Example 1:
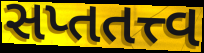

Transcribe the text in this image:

સપ્તતત્ત્વ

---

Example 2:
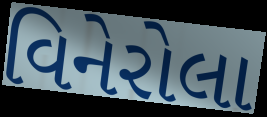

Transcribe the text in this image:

વિનેરોલા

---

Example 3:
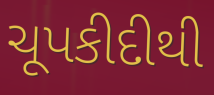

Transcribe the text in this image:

ચૂપકીદીથી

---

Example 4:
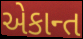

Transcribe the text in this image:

એકાન્ત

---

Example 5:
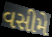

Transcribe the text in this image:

વસીમે